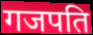
गजपति